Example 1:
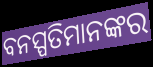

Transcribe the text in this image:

ବନସ୍ପତିମାନଙ୍କର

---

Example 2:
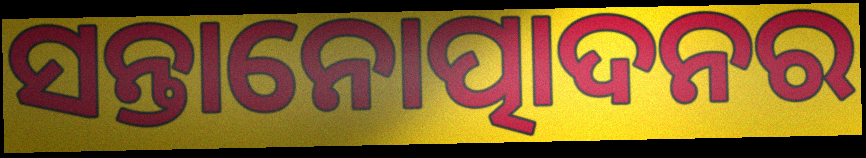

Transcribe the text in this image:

ସନ୍ତାନୋତ୍ପାଦନର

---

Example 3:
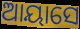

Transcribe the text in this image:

ଆୟାସେ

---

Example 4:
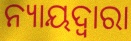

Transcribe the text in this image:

ନ୍ୟାୟଦ୍ୱାରା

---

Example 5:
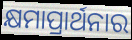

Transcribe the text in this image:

କ୍ଷମାପ୍ରାର୍ଥନାର